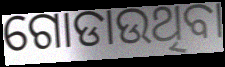
ଗୋଡାଉଥିବା